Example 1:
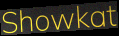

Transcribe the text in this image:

Showkat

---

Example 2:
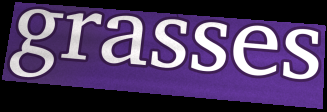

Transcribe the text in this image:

grasses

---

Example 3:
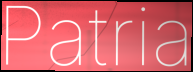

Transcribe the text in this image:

Patria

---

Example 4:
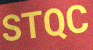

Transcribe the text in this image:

STQC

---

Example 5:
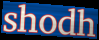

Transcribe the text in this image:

shodh